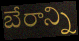
బేరాన్ని